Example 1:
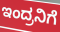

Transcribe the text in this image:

ಇಂದ್ರನಿಗೆ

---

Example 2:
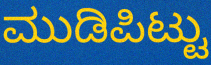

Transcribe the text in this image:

ಮುಡಿಪಿಟ್ಟು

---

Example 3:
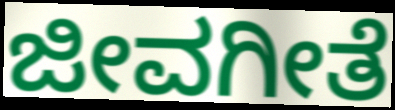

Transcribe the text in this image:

ಜೀವಗೀತೆ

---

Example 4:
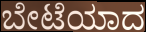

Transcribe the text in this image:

ಬೇಟೆಯಾದ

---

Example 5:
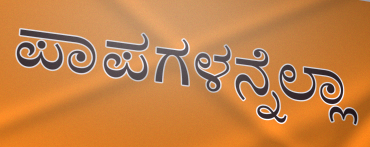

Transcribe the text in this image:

ಪಾಪಗಳನ್ನೆಲ್ಲಾ